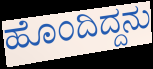
ಹೊಂದಿದ್ದನು